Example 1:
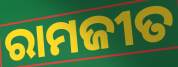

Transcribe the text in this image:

ରାମଜୀତ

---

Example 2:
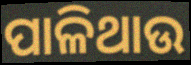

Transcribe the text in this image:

ପାଳିଥାଉ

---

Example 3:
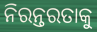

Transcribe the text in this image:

ନିରନ୍ତରତାକୁ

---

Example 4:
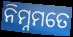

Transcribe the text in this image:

ନିମ୍ନମତେ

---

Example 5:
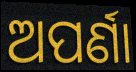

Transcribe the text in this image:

ଅପର୍ଣା